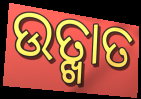
ଉତ୍ଖାତ